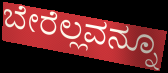
ಬೇರೆಲ್ಲವನ್ನೂ